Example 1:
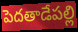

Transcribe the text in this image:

పెదతాడేపల్లి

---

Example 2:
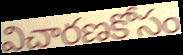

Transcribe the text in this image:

విచారణకోసం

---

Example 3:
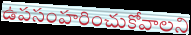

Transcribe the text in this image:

ఉపసంహరించుకోవాలని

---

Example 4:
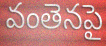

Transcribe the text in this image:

వంతెనపై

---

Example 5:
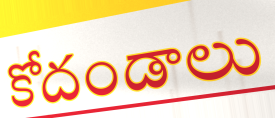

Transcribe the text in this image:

కోదండాలు